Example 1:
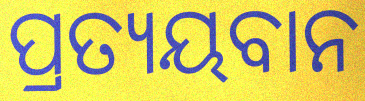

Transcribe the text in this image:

ପ୍ରତ୍ୟୟବାନ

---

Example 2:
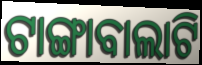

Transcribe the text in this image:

ଟାଙ୍ଗାବାଲାଟି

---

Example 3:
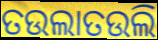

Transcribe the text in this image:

ତଉଲାତଉଲି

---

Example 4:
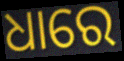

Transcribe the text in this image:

ଧାରେ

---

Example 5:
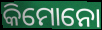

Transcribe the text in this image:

କିମୋନୋ